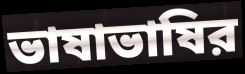
ভাষাভাষির